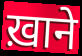
ख़ाने